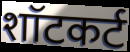
शॉटकर्ट